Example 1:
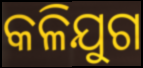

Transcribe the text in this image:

କଳିଯୁଗ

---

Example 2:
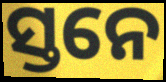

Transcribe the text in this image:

ସ୍ତନେ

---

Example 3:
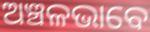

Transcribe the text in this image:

ଅଞ୍ଚଳଭାବେ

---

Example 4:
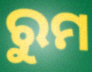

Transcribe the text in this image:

ରୁମ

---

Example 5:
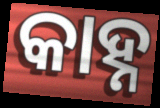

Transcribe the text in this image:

କାହ୍ନ